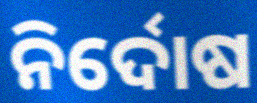
ନିର୍ଦୋଷ